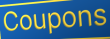
Coupons